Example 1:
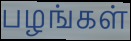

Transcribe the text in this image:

பழங்கள்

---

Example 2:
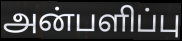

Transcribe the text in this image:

அன்பளிப்பு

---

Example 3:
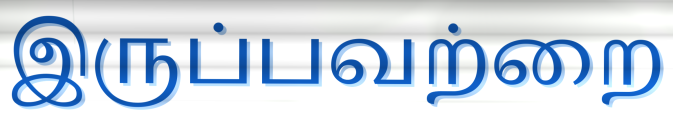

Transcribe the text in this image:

இருப்பவற்றை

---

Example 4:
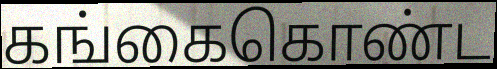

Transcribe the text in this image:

கங்கைகொண்ட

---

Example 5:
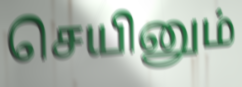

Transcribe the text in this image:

செயினும்